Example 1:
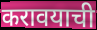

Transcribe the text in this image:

करावयाची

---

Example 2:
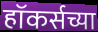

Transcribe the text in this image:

हॉकर्सच्या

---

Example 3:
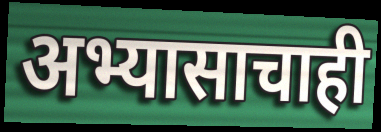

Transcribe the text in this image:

अभ्यासाचाही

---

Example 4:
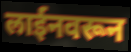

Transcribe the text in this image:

लाईनवरून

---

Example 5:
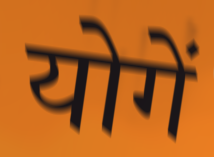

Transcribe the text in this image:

योगें